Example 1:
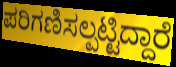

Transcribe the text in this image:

ಪರಿಗಣಿಸಲ್ಪಟ್ಟಿದ್ದಾರೆ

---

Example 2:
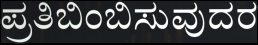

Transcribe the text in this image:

ಪ್ರತಿಬಿಂಬಿಸುವುದರ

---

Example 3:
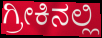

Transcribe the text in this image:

ಗ್ರೀಕಿನಲ್ಲಿ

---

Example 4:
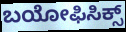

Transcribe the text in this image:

ಬಯೋಫಿಸಿಕ್ಸ್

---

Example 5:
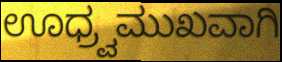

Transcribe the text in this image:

ಊಧ್ರ್ವಮುಖವಾಗಿ